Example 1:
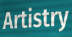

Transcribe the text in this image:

Artistry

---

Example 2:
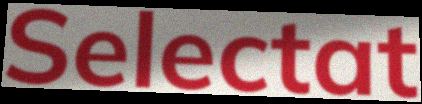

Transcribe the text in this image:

Selectat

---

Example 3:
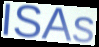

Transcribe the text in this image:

ISAs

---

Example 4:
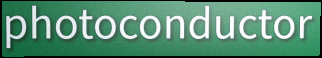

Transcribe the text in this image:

photoconductor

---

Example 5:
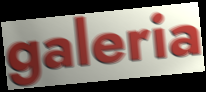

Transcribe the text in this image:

galeria